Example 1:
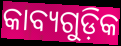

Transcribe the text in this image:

କାବ୍ୟଗୁଡ଼ିକ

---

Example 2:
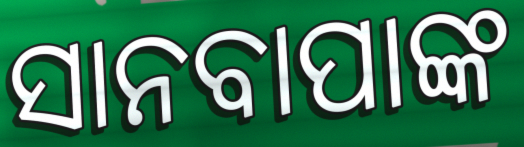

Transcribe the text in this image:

ସାନବାପାଙ୍କ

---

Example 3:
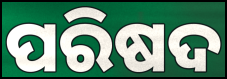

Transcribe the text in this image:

ପରିଷଦ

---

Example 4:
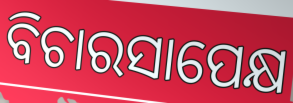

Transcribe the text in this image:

ବିଚାରସାପେକ୍ଷ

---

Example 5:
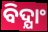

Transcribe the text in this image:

ବିଦ୍ଯାଂ